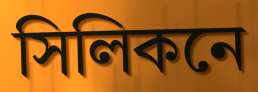
সিলিকনে